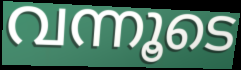
വന്നൂടെ